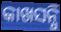
କାଖସନ୍ଧି